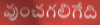
వుంచగలిగేది